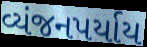
વ્યંજનપર્યાય